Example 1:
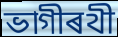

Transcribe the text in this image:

ভাগীৰথী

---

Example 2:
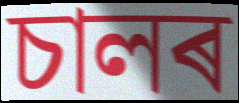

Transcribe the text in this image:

চালৰ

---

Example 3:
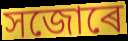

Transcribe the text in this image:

সজোৰে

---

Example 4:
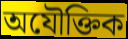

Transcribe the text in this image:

অযৌক্তিক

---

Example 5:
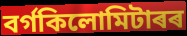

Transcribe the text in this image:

বৰ্গকিলোমিটাৰৰ